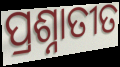
ପ୍ରଶ୍ନାତୀତ